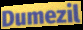
Dumezil